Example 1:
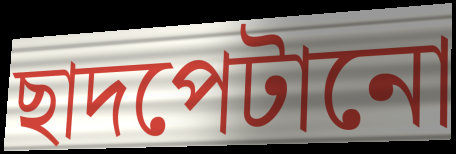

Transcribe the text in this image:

ছাদপেটানো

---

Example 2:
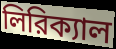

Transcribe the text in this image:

লিরিক্যাল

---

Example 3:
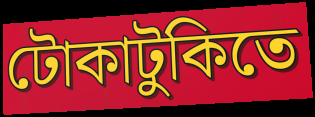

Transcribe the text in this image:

টোকাটুকিতে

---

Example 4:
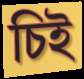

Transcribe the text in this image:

চিই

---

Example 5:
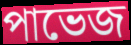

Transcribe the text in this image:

পাভেজ